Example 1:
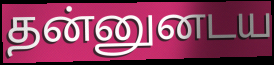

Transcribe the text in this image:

தன்னுனடய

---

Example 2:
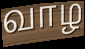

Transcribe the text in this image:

வாழ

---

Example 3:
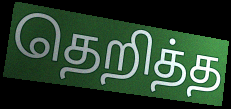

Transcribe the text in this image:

தெறித்த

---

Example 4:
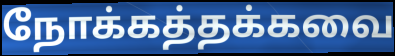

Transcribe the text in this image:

நோக்கத்தக்கவை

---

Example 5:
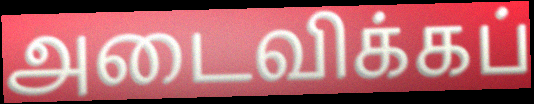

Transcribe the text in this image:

அடைவிக்கப்